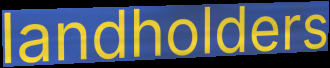
landholders